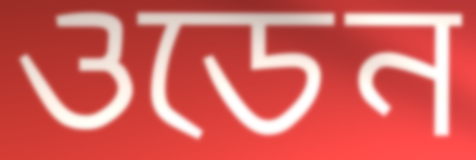
ওডেন